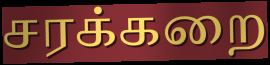
சரக்கறை